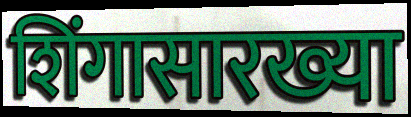
शिंगासारख्या